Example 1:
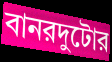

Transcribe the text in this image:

বানরদুটোর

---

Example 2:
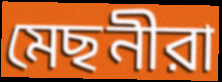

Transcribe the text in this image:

মেছনীরা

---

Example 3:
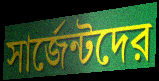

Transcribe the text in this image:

সার্জেন্টদের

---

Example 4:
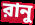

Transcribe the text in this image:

রানু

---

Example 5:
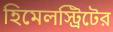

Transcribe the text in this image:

হিমেলস্ট্রিটের